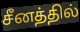
சீனத்தில்